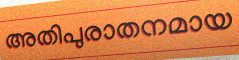
അതിപുരാതനമായ